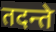
तदन्ते